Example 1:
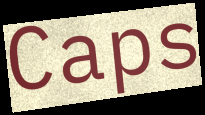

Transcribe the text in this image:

Caps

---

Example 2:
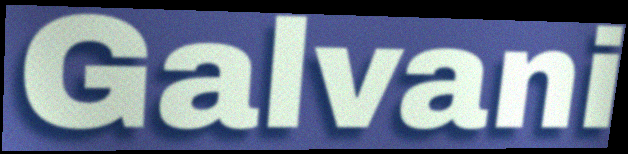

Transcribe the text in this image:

Galvani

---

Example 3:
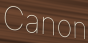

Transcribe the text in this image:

Canon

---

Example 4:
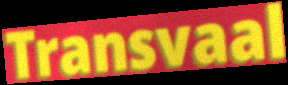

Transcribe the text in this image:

Transvaal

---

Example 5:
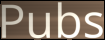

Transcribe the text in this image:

Pubs